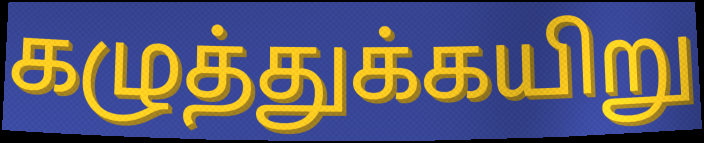
கழுத்துக்கயிறு